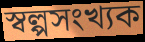
স্বল্পসংখ্যক